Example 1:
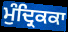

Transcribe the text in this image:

ਮੁੰਦ੍ਰਿਕਕਾ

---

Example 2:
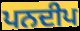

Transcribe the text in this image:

ਪਨਦੀਪ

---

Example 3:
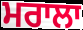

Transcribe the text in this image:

ਮਰਾਲਾ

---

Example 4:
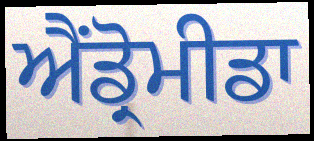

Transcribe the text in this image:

ਐਂਡ੍ਰੋਮੀਡਾ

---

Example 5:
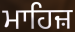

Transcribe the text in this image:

ਮਾਹਿਜ਼